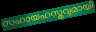
സഹായഹസ്തവുമായി